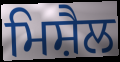
ਮਿਸ਼ੈਲ